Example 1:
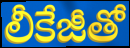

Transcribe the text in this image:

లీకేజీతో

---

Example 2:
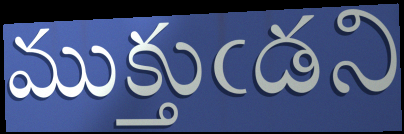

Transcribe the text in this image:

ముక్తుఁడని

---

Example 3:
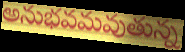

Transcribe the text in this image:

అనుభవమవుతున్న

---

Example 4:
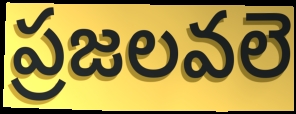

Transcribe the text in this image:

ప్రజలవలె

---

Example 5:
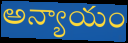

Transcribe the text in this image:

అన్యాయం